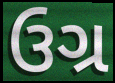
ઉગ્ર